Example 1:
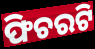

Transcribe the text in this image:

ଫିଚରଟି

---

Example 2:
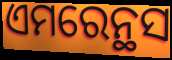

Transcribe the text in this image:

ଏମରେନ୍ଥସ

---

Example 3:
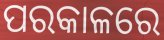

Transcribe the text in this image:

ପରକାଳରେ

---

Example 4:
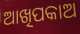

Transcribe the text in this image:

ଆଖିପକାଅ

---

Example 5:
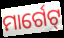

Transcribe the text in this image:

ମାର୍ଗେଟ୍